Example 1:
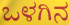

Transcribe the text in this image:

ಒಳಗಿನ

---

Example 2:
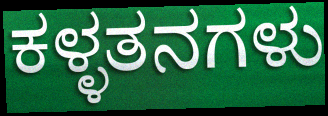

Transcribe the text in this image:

ಕಳ್ಳತನಗಳು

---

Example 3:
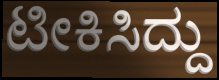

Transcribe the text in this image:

ಟೀಕಿಸಿದ್ದು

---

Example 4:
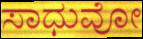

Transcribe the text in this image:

ಸಾಧುವೋ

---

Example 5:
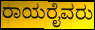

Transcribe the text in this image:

ರಾಯರೈವರು